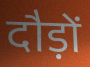
दौड़ों